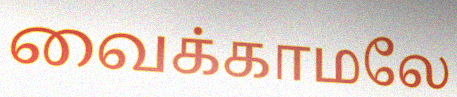
வைக்காமலே